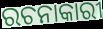
ରଚନାକାରୀ